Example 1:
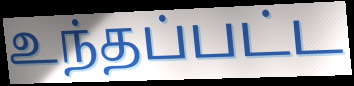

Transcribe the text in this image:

உந்தப்பட்ட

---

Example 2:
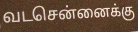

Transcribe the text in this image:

வடசென்னைக்கு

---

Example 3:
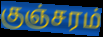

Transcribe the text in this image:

குஞ்சரம்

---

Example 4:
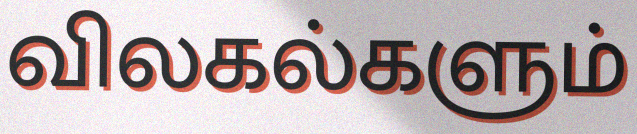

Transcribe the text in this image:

விலகல்களும்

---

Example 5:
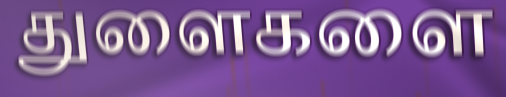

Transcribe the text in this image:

துளைகளை